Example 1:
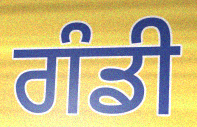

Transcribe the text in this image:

ਗੰਡੀ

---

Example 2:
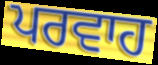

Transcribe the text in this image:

ਪਰਵਾਹ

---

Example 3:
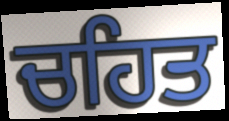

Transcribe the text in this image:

ਚਹਿਤ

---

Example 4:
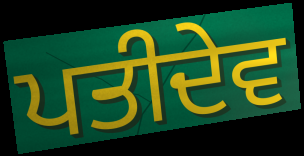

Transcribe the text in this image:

ਪਤੀਦੇਵ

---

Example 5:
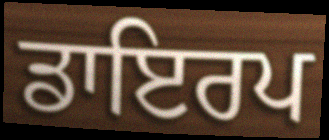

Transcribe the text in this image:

ਡਾਇਰਪ